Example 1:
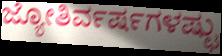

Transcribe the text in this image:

ಜ್ಯೋತಿರ್ವರ್ಷಗಳಷ್ಟು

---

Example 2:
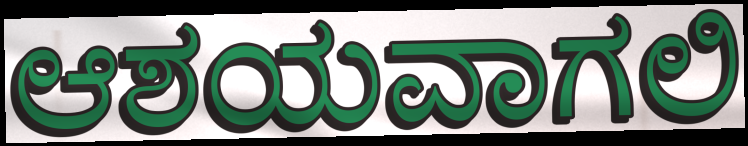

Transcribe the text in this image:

ಆಶಯವಾಗಲಿ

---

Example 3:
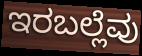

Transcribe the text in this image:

ಇರಬಲ್ಲೆವು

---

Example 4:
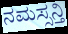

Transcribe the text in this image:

ನಮಸ್ಸನ್ತಿ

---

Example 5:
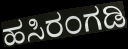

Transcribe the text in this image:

ಹಸಿರಂಗಡಿ